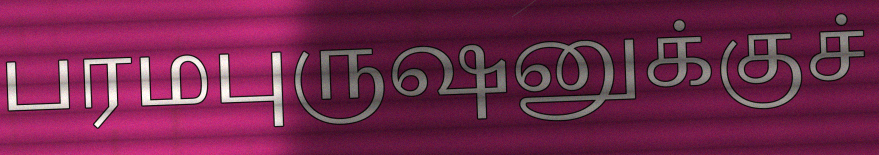
பரமபுருஷனுக்குச்